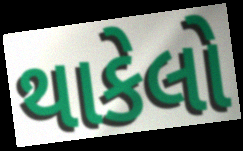
થાકેલો